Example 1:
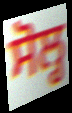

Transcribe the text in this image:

ਸੋਲ੍ਹ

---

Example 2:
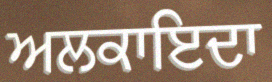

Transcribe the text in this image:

ਅਲਕਾਇਦਾ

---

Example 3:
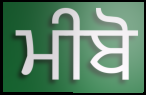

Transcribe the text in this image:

ਮੀਬੋ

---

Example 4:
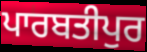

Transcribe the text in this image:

ਪਾਰਬਤੀਪੁਰ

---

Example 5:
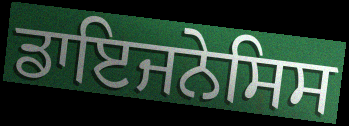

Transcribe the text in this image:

ਡਾਇਜਨੇਸਿਸ